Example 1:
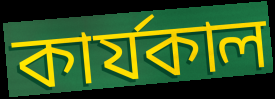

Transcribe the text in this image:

কাৰ্যকাল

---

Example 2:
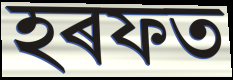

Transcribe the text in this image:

হৰফত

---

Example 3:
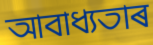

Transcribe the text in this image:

আবাধ্যতাৰ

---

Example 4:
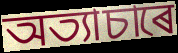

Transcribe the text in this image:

অত্যাচাৰে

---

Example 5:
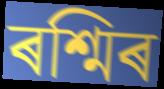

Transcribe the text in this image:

ৰশ্মিৰ